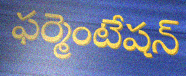
ఫర్మెంటేషన్